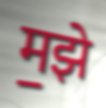
म॒झे